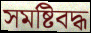
সমষ্টিবদ্ধ